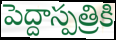
పెద్దాస్పత్రికి